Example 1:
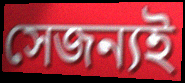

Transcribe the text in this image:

সেজন্যই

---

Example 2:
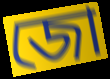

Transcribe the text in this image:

জো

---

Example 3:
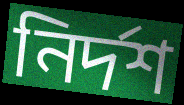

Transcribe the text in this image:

নির্দশ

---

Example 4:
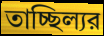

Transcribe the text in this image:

তাচ্ছিল্যর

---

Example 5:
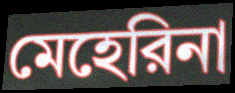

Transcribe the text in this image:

মেহেরিনা